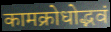
कामक्रोधोद्भवं